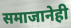
समाजानेही